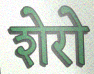
शेरो